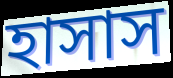
হাসাস